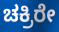
ಚಕ್ರಿರೇ